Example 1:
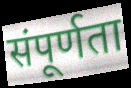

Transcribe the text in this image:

संपूर्णता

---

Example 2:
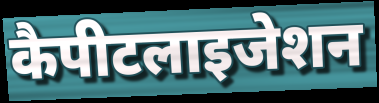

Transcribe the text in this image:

कैपीटलाइजेशन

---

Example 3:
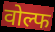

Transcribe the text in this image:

वोल्फ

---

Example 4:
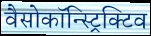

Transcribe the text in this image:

वैसोकॉन्स्ट्रिक्टिव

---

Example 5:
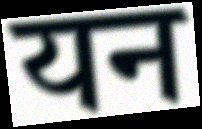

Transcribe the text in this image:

यन